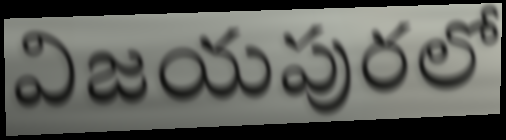
విజయపురలో